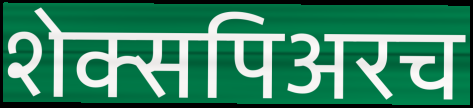
शेक्सपिअरच